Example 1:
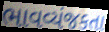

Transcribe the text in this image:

ભાવવ્યંજકતા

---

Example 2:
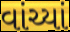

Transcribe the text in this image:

વાંચ્યાં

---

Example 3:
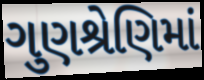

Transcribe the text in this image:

ગુણશ્રેણિમાં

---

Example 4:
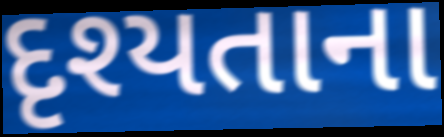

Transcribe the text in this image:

દૃશ્યતાના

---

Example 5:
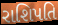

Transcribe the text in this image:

રાશિપતિ